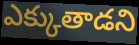
ఎక్కుతాడని